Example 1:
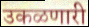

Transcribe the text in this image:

उकळणारी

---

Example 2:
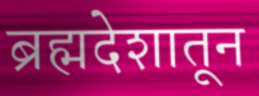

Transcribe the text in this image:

ब्रह्मदेशातून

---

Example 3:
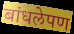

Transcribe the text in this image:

बांधलेपण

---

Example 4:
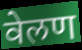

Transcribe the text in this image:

वेलण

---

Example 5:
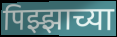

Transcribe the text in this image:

पिझ्झाच्या